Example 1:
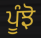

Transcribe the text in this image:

ਪੂੰਝੋ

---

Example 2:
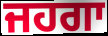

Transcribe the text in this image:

ਜਹਗਾ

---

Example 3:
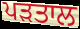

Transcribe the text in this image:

ਪੜਤਾਲ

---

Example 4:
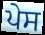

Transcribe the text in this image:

ਪੇਸ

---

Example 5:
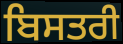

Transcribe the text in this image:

ਬਿਸਤਰੀ